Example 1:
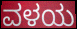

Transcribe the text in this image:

ವಳಯ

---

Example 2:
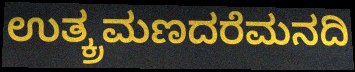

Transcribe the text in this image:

ಉತ್ಕ್ರಮಣದರೆಮನದಿ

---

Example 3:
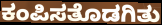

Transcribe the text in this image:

ಕಂಪಿಸತೊಡಗಿತು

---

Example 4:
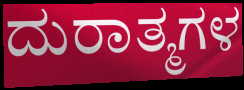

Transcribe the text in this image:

ದುರಾತ್ಮಗಳ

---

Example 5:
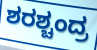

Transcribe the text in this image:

ಶರಶ್ಚಂದ್ರ